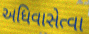
અધિવાસેત્વા